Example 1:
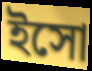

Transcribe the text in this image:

ইসো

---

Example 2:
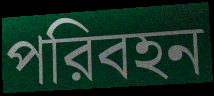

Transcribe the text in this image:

পরিবহন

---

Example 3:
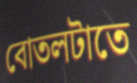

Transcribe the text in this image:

বোতলটাতে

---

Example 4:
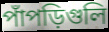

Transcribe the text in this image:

পাঁপড়িগুলি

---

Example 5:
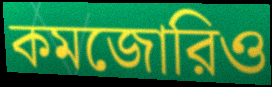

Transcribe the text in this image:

কমজোরিও